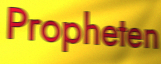
Propheten